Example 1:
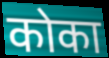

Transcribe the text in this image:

कोका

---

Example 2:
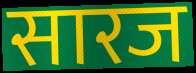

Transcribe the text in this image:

सारज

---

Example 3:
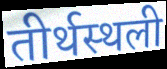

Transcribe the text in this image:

तीर्थस्थली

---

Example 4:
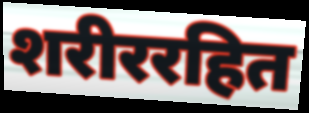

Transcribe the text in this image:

शरीररहित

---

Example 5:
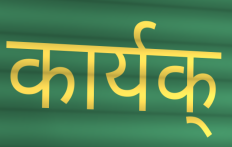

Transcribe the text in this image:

कार्यक्